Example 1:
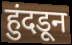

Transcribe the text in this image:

हुंदडून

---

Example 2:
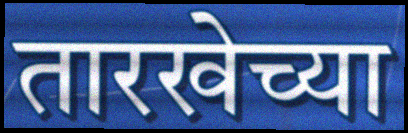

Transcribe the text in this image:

तारखेच्या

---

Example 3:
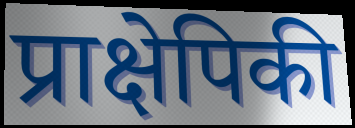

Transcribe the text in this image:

प्राक्षेपिकी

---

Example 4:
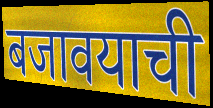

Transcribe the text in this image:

बजावयाची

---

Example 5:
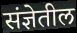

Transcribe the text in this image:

संज्ञेतील